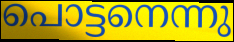
പൊട്ടനെന്നു